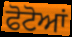
ਫੋਟੋਆਂ